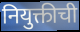
नियुक्तीची